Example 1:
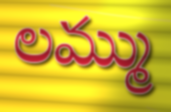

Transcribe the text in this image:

లమ్ము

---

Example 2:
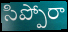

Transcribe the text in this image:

సిప్పోరా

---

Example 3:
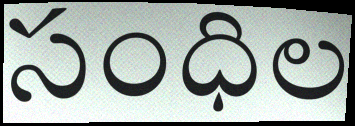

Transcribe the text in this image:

సంధిల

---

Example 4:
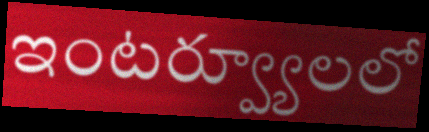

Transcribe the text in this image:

ఇంటర్వ్యూలలో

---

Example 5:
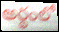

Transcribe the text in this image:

అర్థంలో